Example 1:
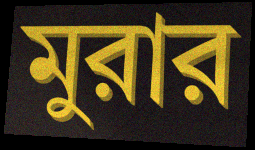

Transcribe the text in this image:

মুরার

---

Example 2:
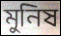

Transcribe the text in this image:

মুনিষ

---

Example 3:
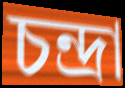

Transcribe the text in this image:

চন্দ্রা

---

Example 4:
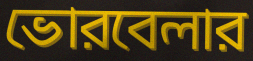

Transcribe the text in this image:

ভোরবেলার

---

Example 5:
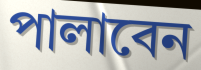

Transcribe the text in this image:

পালাবেন